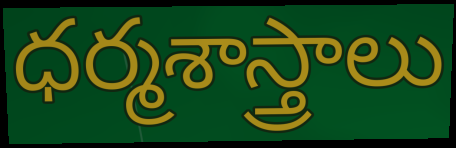
ధర్మశాస్త్రాలు